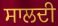
ਸਾਲਦੀ